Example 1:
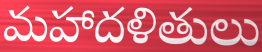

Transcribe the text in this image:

మహాదళితులు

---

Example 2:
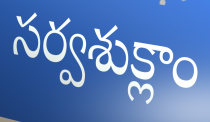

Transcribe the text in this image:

సర్వశుక్లాం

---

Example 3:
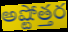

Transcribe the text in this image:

అష్టోత్తర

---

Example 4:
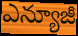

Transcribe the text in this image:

ఎన్యూజీ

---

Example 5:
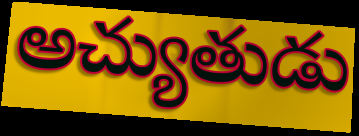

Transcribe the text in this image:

అచ్యుతుడు